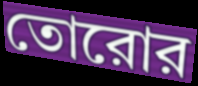
তোরোর